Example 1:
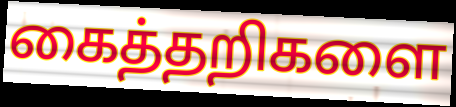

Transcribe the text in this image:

கைத்தறிகளை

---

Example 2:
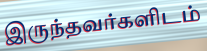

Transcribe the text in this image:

இருந்தவர்களிடம்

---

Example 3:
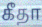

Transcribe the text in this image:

கீதா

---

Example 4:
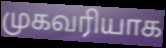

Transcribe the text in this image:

முகவரியாக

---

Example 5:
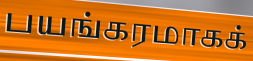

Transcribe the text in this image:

பயங்கரமாகக்